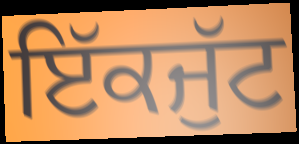
ਇੱਕਜੁੱਟ